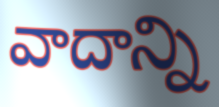
వాదాన్ని